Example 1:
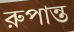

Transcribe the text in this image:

রুপান্ত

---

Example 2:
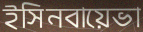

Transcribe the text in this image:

ইসিনবায়েভা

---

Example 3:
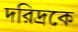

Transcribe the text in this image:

দরিদ্রকে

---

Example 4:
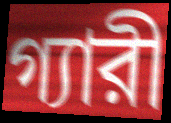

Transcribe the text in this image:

গ্যারী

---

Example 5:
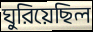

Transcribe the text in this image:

ঘুরিয়েছিল